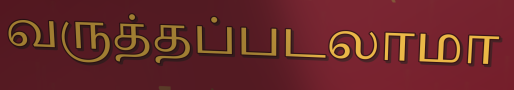
வருத்தப்படலாமா